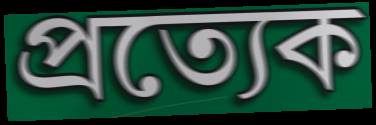
প্ৰত্য়েক